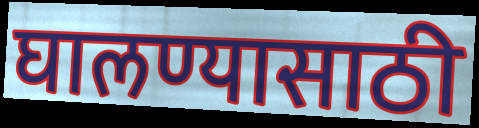
घालण्यासाठी